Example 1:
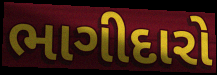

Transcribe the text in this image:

ભાગીદારો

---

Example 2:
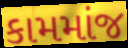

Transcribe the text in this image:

કામમાંજ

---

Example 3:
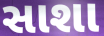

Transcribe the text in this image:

સાશા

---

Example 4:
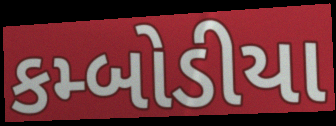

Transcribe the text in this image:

કમ્બોડીયા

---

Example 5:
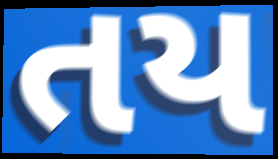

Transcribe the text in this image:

તય